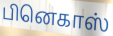
பினெகாஸ்